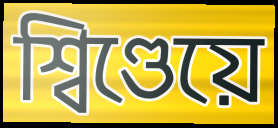
শ্বিণ্ডেয়ে